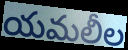
యమలీల